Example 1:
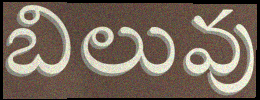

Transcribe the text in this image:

బిలువు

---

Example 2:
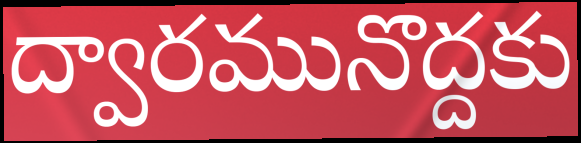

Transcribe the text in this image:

ద్వారమునొద్దకు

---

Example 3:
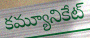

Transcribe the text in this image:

కమ్యూనికేట్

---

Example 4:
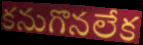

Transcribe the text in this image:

కనుగొనలేక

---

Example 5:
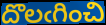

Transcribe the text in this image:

దొలఁగించి